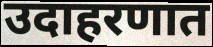
उदाहरणात